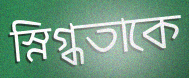
স্নিগ্ধতাকে